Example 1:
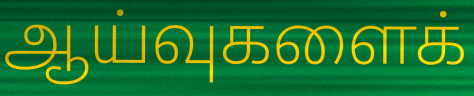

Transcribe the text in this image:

ஆய்வுகளைக்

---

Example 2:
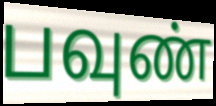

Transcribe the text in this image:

பவுண்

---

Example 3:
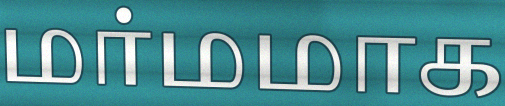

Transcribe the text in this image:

மர்மமாக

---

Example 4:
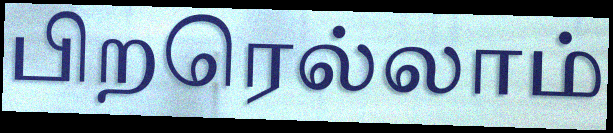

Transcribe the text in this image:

பிறரெல்லாம்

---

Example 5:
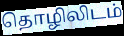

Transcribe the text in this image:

தொழிலிடம்